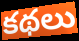
కథలు